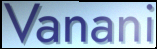
Vanani